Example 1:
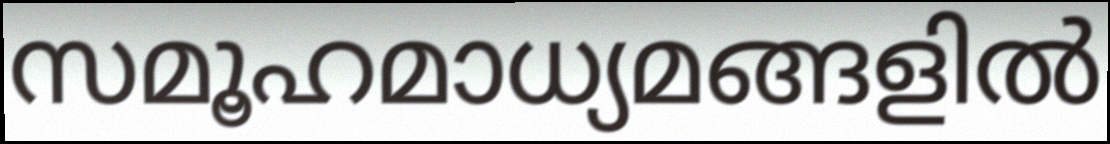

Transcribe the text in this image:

സമൂഹമാധ്യമങ്ങളിൽ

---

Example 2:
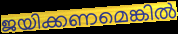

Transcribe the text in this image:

ജയിക്കണമെങ്കിൽ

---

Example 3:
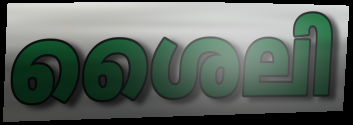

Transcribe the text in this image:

ശൈലി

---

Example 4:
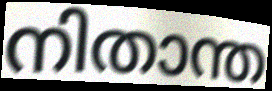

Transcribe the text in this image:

നിതാന്ത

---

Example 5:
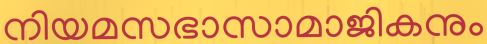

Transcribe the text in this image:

നിയമസഭാസാമാജികനും